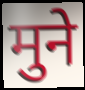
मुने